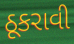
ઠૂકરાવી